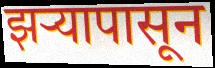
झऱ्यापासून